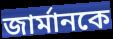
জার্মানকে